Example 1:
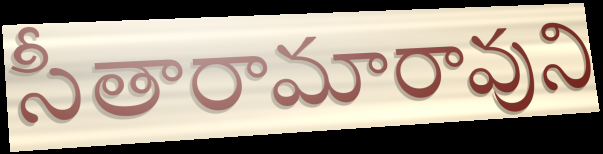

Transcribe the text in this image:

సీతారామారావుని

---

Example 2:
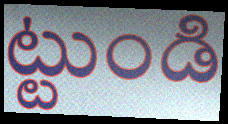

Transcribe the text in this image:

ట్టుండి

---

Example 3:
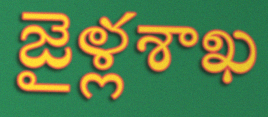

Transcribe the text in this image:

జైళ్లశాఖ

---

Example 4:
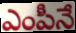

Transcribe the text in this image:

ఎంపీనే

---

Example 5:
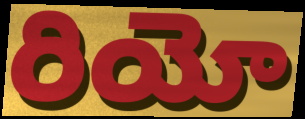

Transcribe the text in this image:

రియో